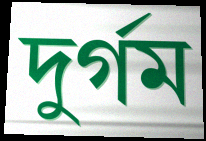
দুর্গম